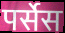
पर्सेस